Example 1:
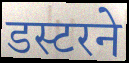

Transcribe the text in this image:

डस्टरने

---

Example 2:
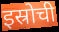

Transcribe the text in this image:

इस्रोची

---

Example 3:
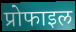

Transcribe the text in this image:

प्रोफाइल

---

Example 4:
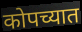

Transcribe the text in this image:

कोपच्यात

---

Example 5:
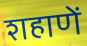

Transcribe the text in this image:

शहाणें